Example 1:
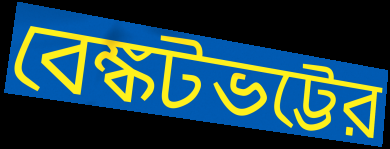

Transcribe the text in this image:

বেঙ্কটভট্টের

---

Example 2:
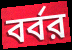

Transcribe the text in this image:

বর্বর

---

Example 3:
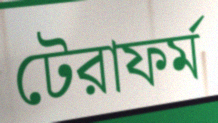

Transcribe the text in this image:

টেরাফর্ম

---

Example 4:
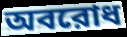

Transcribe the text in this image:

অবরোধ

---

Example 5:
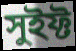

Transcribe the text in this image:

সুইফ্ট